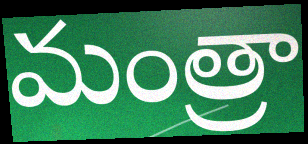
మంత్రా